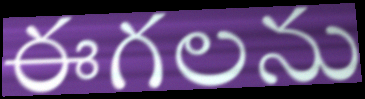
ఈగలను